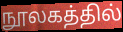
நூலகத்தில்